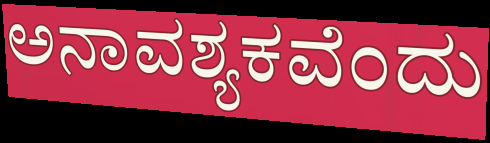
ಅನಾವಶ್ಯಕವೆಂದು